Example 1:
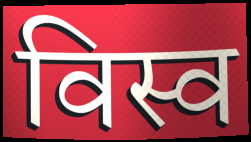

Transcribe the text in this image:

विस्व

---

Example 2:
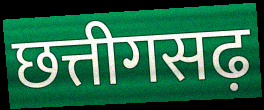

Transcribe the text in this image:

छत्तीगसढ़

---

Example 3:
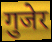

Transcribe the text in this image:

गुजेर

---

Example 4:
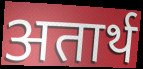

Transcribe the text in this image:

अतार्थ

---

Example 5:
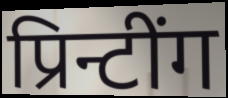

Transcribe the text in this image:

प्रिन्टींग